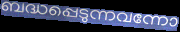
ബദ്ധപ്പെടുന്നവന്നോ